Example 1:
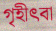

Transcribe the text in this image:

গৃহীৎবা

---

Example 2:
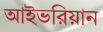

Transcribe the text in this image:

আইভরিয়ান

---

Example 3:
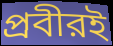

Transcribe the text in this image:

প্রবীরই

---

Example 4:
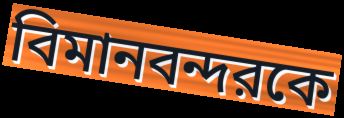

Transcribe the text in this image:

বিমানবন্দরকে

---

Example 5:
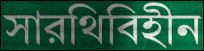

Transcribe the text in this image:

সারথিবিহীন